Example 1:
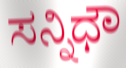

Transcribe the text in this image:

ಸನ್ನಿಧೌ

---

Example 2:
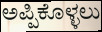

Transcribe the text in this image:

ಅಪ್ಪಿಕೊಳ್ಳಲು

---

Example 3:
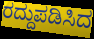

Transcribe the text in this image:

ರದ್ದುಪಡಿಸಿದ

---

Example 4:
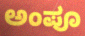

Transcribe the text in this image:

ಅಂಪೂ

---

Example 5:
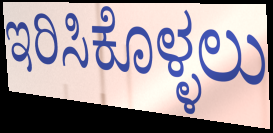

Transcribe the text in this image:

ಇರಿಸಿಕೊಳ್ಳಲು